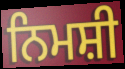
ਨਿਮਸ਼ੀ